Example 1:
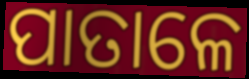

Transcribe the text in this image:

ପାତାଳେ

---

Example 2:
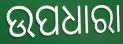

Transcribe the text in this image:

ଉପଧାରା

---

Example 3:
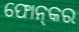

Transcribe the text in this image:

ଫୋନ୍‌କର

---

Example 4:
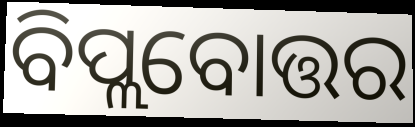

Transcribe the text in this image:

ବିପ୍ଲବୋତ୍ତର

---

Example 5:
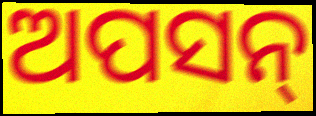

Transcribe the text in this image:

ଅପସନ୍